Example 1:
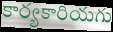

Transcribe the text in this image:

కార్యకారియగు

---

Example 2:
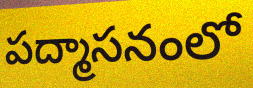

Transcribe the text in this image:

పద్మాసనంలో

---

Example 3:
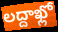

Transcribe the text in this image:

లద్దాఖ్లో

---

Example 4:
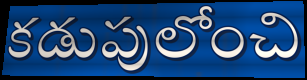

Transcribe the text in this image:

కడుపులోంచి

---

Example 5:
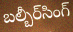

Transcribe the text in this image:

బల్బీర్‌సింగ్